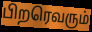
பிறரெவரும்